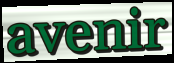
avenir